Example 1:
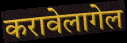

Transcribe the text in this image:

करावेलागेल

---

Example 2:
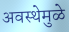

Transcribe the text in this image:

अवस्थेमुळे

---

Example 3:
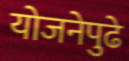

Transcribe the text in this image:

योजनेपुढे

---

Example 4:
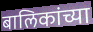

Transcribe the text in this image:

बालिकांच्या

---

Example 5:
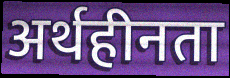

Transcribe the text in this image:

अर्थहीनता